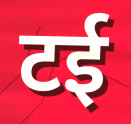
टई